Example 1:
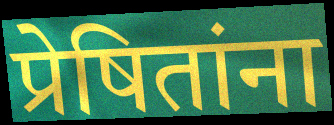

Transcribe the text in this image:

प्रेषितांना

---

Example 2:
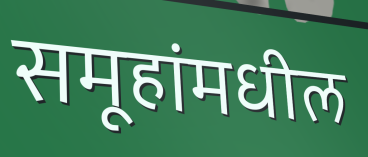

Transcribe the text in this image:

समूहांमधील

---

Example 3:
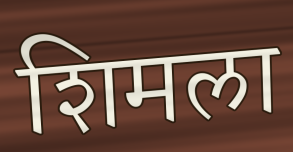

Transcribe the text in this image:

शिमला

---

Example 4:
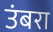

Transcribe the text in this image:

उंबरा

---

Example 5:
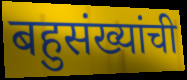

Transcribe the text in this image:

बहुसंख्यांची